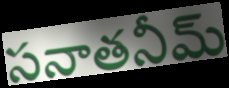
సనాతనీమ్